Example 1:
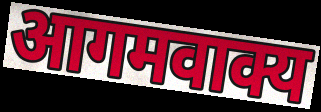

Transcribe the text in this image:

आगमवाक्य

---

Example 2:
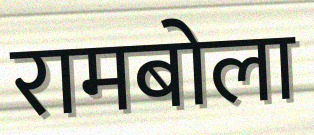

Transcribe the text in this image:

रामबोला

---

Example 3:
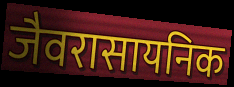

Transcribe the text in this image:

जैवरासायनिक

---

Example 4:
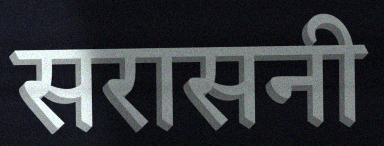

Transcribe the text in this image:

सरासनी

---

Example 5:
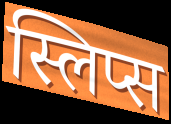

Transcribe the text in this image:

स्लिप्स